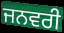
ਜਨਵਰੀ